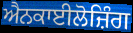
ਐਨਕਾਈਲੋਜ਼ਿੰਗ